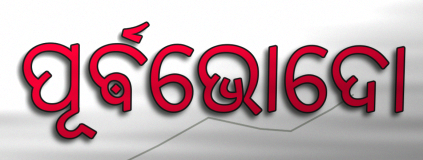
ପୂର୍ଵଭୋଦୋ